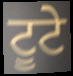
ਟੂਟੇ